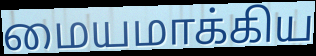
மையமாக்கிய